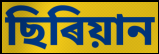
ছিৰিয়ান